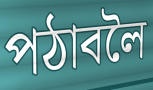
পঠাবলৈ